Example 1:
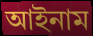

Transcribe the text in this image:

আইনাম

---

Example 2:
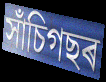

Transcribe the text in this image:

সাঁচিগছৰ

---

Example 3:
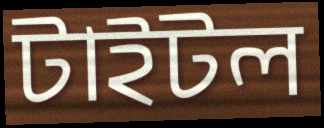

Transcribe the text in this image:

টাইটল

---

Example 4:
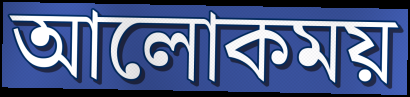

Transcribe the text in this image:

আলোকময়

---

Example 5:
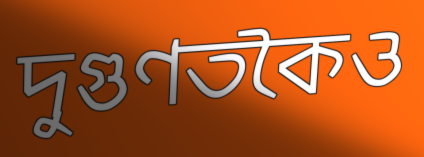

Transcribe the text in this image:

দুগুণতকৈও